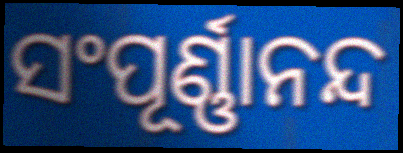
ସଂପୂର୍ଣ୍ଣାନନ୍ଦ